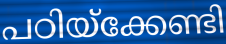
പഠിയ്ക്കേണ്ടി